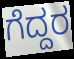
ಗೆದ್ದರ